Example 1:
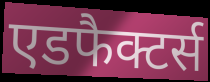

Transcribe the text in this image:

एडफैक्टर्स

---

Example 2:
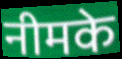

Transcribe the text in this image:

नीमके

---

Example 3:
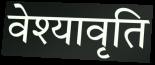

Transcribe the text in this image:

वेश्यावृति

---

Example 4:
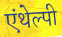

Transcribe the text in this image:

एंथेल्पी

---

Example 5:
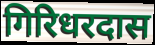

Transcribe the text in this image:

गिरिधरदास